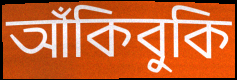
আঁকিবুকি